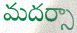
మదర్సా